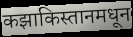
कझाकिस्तानमधून